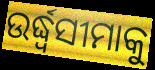
ଉର୍ଦ୍ଧ୍ୱସୀମାକୁ